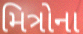
મિત્રોના